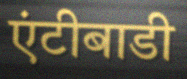
एंटीबाडी